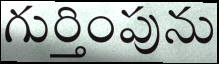
గుర్తింపును